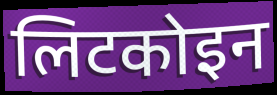
लिटकोइन